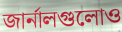
জার্নালগুলোও